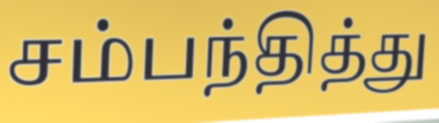
சம்பந்தித்து